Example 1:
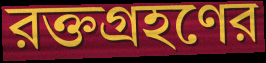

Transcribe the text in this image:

রক্তগ্রহণের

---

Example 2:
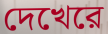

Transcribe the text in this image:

দেখেরে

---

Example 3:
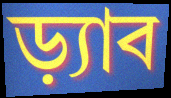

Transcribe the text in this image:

ড়্যাব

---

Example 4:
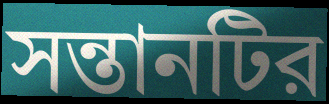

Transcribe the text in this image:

সন্তানটির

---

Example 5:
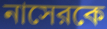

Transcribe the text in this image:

নাসেরকে